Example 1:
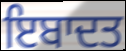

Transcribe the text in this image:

ਇਬਾਦਤ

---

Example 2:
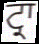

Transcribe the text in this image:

ਟ੍ਰਾ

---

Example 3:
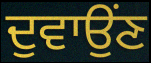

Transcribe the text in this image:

ਦੁਵਾਉਂਣ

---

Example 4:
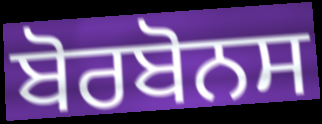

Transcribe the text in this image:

ਬੋਰਬੋਨਸ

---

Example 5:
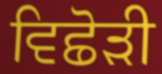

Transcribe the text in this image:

ਵਿਛੋੜੀ